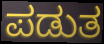
ಪಡುತ